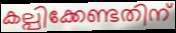
കല്പിക്കേണ്ടതിന്